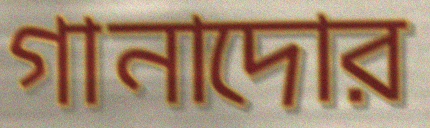
গানাদোর